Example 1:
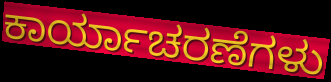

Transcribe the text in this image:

ಕಾರ್ಯಾಚರಣೆಗಳು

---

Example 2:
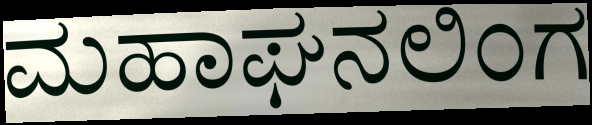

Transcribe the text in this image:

ಮಹಾಘನಲಿಂಗ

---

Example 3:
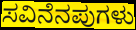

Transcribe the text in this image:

ಸವಿನೆನಪುಗಳು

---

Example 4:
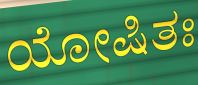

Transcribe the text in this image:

ಯೋಷಿತಃ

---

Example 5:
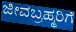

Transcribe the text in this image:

ಜೀವಬ್ರಹ್ಮರಿಗೆ